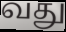
வது